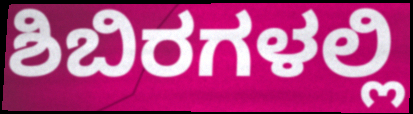
ಶಿಬಿರಗಳಲ್ಲಿ